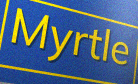
Myrtle